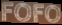
FOFO